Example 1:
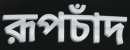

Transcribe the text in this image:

রূপচাঁদ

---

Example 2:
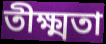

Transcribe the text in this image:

তীক্ষ্মতা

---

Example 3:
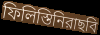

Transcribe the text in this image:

ফিলিস্তিনিরাছবি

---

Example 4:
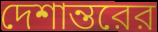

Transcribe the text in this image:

দেশান্তরের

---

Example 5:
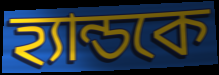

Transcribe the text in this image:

হ্যান্ডকে